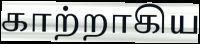
காற்றாகிய